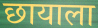
छायाला